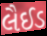
લૈઈડ